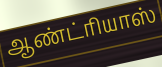
ஆண்ட்ரியாஸ்